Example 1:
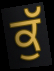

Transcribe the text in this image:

ਕੁੱ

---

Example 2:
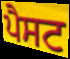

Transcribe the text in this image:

ਪੈਸਟ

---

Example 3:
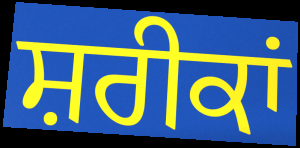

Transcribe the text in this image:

ਸ਼ਰੀਕਾਂ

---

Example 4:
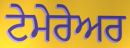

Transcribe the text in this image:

ਟੇਮੇਰੇਅਰ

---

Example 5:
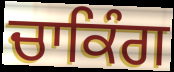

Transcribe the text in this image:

ਚਾਕਿੰਗ